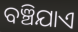
ବଞ୍ଚିଯାଏ